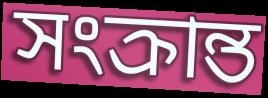
সংক্ৰান্ত